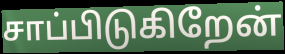
சாப்பிடுகிறேன்